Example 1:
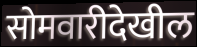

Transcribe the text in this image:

सोमवारीदेखील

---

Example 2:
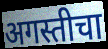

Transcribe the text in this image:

अगस्तीचा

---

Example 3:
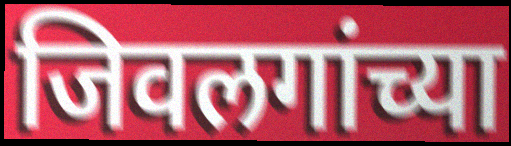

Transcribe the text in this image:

जिवलगांच्या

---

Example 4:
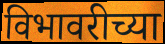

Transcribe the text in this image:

विभावरीच्या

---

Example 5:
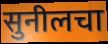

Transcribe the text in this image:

सुनीलचा